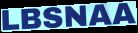
LBSNAA